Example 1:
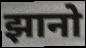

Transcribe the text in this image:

झानो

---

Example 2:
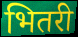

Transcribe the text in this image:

भितरी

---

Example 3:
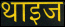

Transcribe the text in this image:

थाइज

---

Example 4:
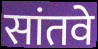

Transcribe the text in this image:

सांतवे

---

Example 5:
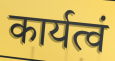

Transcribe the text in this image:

कार्यत्वं